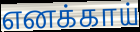
எனக்காய்